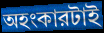
অহংকারটাই